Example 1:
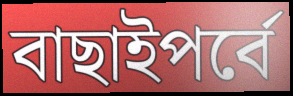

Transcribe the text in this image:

বাছাইপর্বে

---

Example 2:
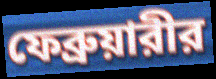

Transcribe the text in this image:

ফেব্রুয়ারীর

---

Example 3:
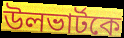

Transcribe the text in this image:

উলভার্টকে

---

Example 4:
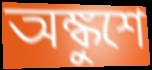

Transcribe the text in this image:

অঙ্কুশে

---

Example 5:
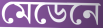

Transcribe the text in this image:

মেডেনে